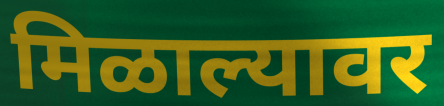
मिळाल्यावर